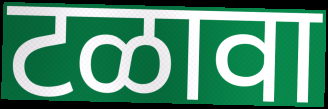
टळावा